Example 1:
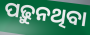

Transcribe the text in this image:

ପଢ଼ୁନଥିବା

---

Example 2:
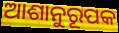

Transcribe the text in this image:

ଆଶାନୁରୂପକ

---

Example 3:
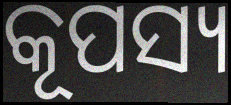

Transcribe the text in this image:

କୂପସ୍ୟ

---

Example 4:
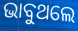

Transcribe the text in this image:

ଭାବୁଥଲେ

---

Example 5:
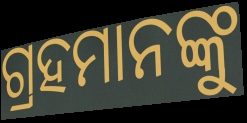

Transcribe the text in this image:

ଗ୍ରହମାନଙ୍କୁ